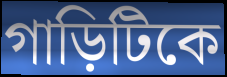
গাড়িটিকে